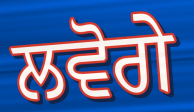
ਲਵੋਗੇ